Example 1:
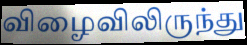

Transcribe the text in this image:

விழைவிலிருந்து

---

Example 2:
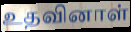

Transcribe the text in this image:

உதவினாள்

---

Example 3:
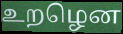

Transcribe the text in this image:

உறழென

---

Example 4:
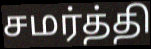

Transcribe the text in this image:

சமர்த்தி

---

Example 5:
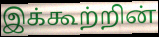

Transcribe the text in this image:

இக்கூற்றின்